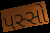
પસ્સો